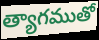
త్యాగముతో